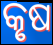
କୃଷ